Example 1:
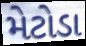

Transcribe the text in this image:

મેટોડા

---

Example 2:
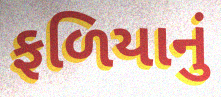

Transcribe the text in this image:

ફળિયાનું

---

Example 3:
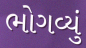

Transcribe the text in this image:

ભોગવ્યું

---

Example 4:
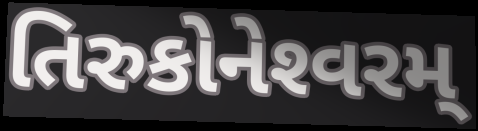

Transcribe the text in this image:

તિરુકોનેશ્‍વરમ્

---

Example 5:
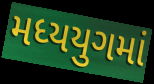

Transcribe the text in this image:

મધ્યયુગમાં